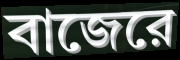
বাজেরে